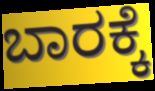
ಬಾರಕ್ಕೆ